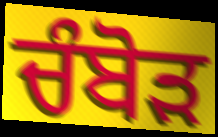
ਚੰਬੋੜ